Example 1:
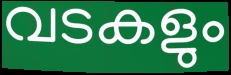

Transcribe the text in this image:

വടകളും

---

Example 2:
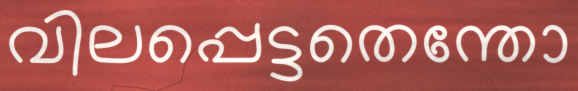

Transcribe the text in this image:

വിലപ്പെട്ടതെന്തോ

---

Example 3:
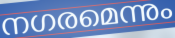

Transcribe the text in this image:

നഗരമെന്നും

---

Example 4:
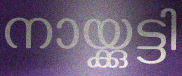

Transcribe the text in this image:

നായ്ക്കുട്ടി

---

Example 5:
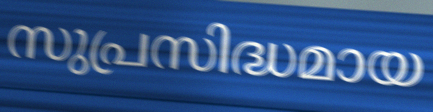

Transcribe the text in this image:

സുപ്രസിദ്ധമായ